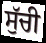
ਸੁੱਚੀ